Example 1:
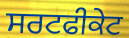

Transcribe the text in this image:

ਸਰਟਫੀਕੇਟ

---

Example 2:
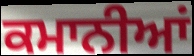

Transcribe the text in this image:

ਕਮਾਨੀਆਂ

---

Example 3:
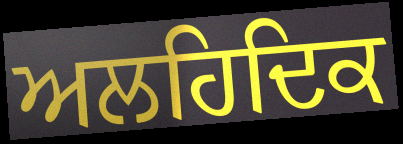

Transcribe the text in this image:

ਅਲਹਿਦਿਕ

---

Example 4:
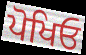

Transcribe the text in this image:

ਪੋਖਿਓ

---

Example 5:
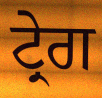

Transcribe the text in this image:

ਟ੍ਰੇਗ